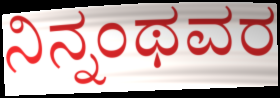
ನಿನ್ನಂಥವರ